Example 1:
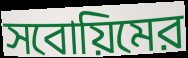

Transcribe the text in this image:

সবোয়িমের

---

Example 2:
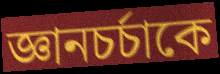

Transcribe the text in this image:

জ্ঞানচর্চাকে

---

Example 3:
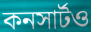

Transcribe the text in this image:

কনসার্টও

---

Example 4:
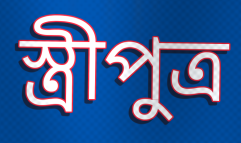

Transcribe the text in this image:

স্ত্রীপুত্র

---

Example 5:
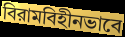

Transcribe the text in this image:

বিরামবিহীনভাবে